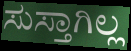
ಸುಸ್ತಾಗಿಲ್ಲ